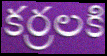
కర్రలకి